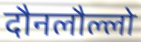
दौनलौल्लो